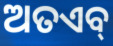
ଅତଏବ୍